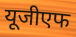
यूजीएफ